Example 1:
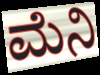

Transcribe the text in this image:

ಮೆನಿ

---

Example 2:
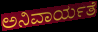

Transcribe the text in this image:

ಅನಿವಾರ್ಯತೆ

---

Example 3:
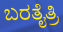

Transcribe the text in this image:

ಬರತೈತ್ರಿ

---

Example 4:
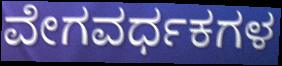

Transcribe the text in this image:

ವೇಗವರ್ಧಕಗಳ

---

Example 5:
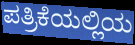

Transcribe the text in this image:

ಪತ್ರಿಕೆಯಲ್ಲಿಯ